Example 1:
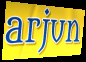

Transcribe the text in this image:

arjun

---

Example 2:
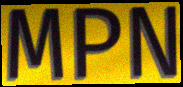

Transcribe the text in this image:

MPN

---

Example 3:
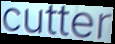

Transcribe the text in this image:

cutter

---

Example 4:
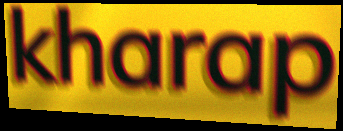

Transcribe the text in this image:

kharap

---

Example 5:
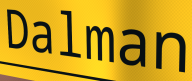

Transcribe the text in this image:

Dalman